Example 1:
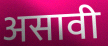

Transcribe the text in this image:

असावी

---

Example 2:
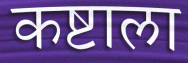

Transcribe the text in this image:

कष्टाला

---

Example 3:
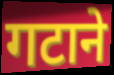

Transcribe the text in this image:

गटाने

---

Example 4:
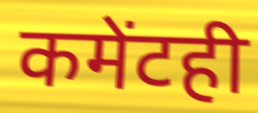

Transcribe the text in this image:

कमेंटही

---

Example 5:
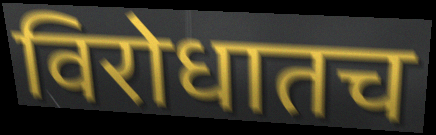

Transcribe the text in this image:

विरोधातच